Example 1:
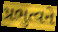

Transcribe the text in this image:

પ્રભુત્વને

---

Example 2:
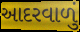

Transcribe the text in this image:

આદરવાળું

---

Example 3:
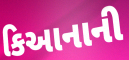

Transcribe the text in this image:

કિઆનાની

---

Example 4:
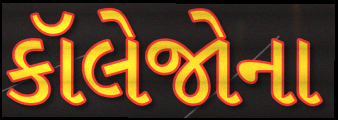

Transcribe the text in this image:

કૉલેજોના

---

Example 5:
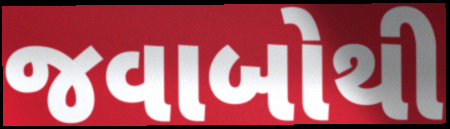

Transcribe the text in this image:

જવાબોથી